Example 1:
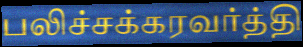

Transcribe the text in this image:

பலிச்சக்கரவர்த்தி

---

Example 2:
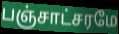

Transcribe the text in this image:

பஞ்சாட்சரமே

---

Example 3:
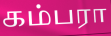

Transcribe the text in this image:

கம்பரா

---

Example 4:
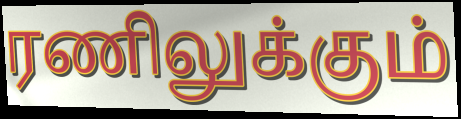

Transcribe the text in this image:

ரணிலுக்கும்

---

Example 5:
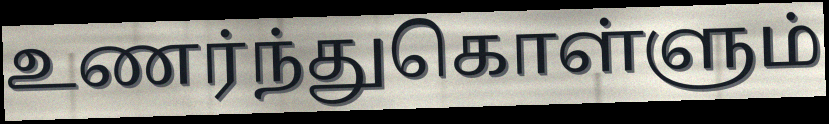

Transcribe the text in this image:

உணர்ந்துகொள்ளும்